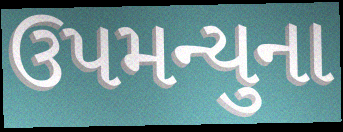
ઉપમન્યુના